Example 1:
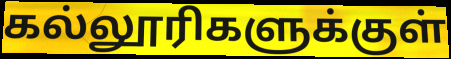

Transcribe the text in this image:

கல்லூரிகளுக்குள்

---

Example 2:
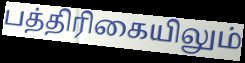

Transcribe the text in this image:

பத்திரிகையிலும்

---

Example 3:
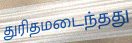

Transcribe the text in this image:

துரிதமடைந்தது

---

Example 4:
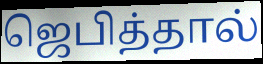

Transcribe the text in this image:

ஜெபித்தால்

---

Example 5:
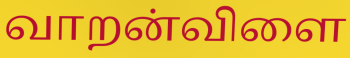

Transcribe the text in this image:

வாறன்விளை